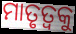
ମାତୃତ୍ବକୁ